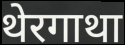
थेरगाथा